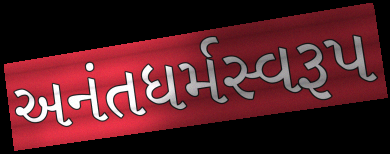
અનંતધર્મસ્વરૂપ